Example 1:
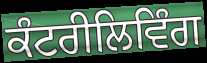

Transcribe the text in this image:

ਕੰਟਰੀਲਿਵਿੰਗ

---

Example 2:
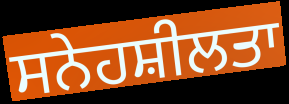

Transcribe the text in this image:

ਸਨੇਹਸ਼ੀਲਤਾ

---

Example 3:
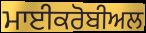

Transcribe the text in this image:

ਮਾਈਕਰੋਬੀਅਲ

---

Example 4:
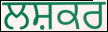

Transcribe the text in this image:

ਲਸ਼ਕਰ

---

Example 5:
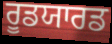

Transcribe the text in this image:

ਰੂਡਯਾਰਡ